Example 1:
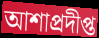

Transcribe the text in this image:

আশাপ্রদীপ্ত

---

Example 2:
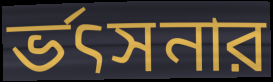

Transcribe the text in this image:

র্ভৎসনার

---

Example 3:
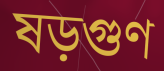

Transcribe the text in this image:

ষড়গুণ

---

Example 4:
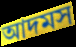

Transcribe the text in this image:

আদমস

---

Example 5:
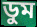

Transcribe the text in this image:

ডুম